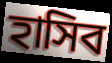
হাসিব